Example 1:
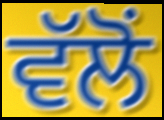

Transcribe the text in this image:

ਵੱਲੋਂ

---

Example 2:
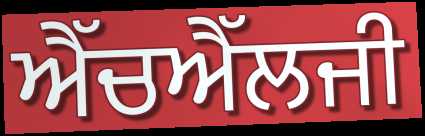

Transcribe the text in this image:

ਐੱਚਐੱਲਜੀ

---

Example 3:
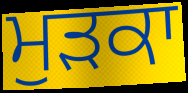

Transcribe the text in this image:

ਮੁੜਕਾ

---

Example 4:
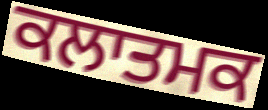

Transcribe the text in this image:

ਕਲਾਤਮਕ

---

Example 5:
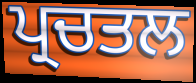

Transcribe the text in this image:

ਪ੍ਰਚਤਲ